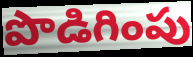
పొడిగింపు